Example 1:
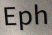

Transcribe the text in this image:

Eph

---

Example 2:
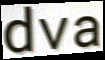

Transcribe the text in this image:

dva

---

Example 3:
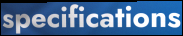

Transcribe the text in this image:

specifications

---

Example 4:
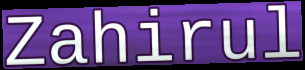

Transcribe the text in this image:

Zahirul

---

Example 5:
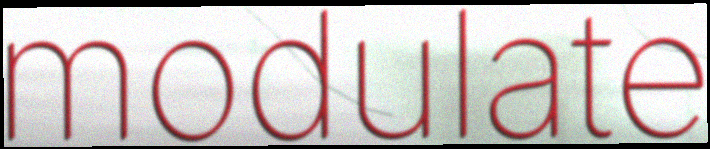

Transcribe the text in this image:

modulate